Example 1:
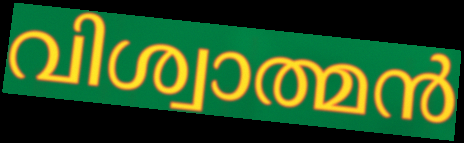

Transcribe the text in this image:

വിശ്വാത്മൻ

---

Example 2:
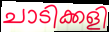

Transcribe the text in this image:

ചാടിക്കളി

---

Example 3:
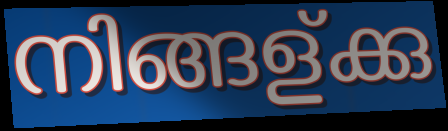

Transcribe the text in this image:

നിങ്ങള്ക്കു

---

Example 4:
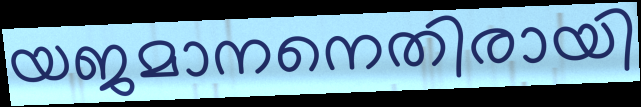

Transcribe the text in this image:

യജമാനനെതിരായി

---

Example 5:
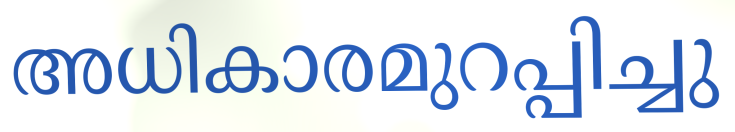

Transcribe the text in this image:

അധികാരമുറപ്പിച്ചു